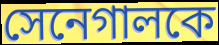
সেনেগালকে